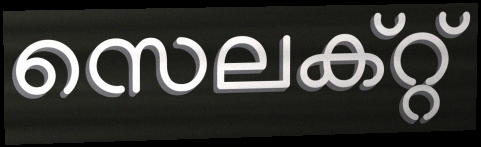
സെലക്റ്റ്